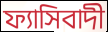
ফ্যাসিবাদী